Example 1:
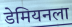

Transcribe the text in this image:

डेमियनला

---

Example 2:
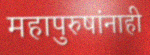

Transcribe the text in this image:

महापुरुषांनाही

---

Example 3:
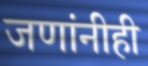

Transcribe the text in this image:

जणांनीही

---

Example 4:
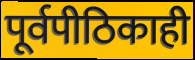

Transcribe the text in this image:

पूर्वपीठिकाही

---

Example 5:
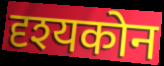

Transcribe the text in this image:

दृश्‍यकोन